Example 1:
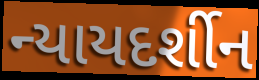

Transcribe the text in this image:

ન્યાયદર્શીન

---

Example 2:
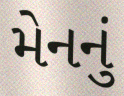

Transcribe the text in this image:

મેનનું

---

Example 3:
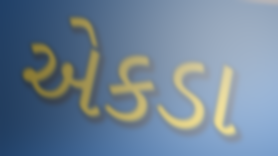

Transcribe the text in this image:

એકડા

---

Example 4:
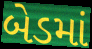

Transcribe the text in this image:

બેડમાં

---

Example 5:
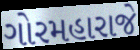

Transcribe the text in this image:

ગોરમહારાજે